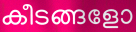
കീടങ്ങളോ